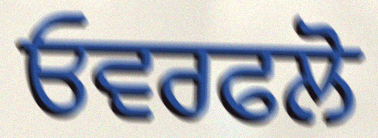
ਓਵਰਫਲੋ